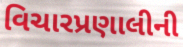
વિચારપ્રણાલીની